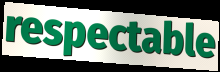
respectable